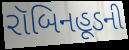
રૉબિનહૂડની